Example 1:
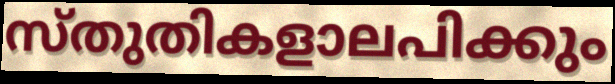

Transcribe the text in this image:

സ്തുതികളാലപിക്കും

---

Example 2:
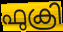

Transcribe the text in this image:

ഫുക്രി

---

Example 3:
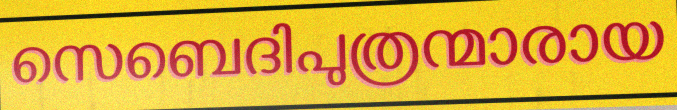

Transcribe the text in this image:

സെബെദിപുത്രന്മാരായ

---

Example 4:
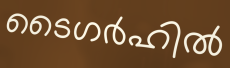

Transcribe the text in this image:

ടൈഗർഹിൽ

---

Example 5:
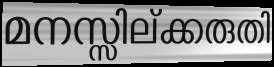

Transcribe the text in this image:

മനസ്സില്ക്കരുതി